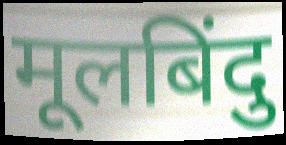
मूलबिंदु